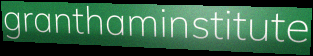
granthaminstitute